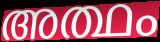
അത്ഥം